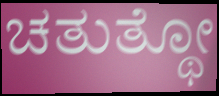
ಚತುತ್ಥೋ